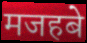
मजहबे